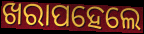
ଖରାପହେଲେ